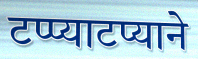
टप्प्याटप्याने